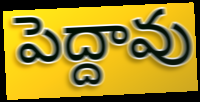
పెద్దావు